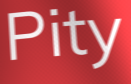
Pity